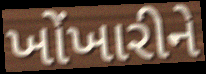
ખોંખારીને